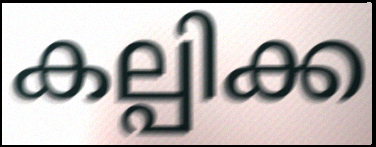
കല്പിക്ക